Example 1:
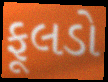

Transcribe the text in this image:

ફૂલડો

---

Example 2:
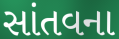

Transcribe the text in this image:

સાંતવના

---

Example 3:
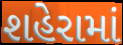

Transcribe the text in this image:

શહેરામાં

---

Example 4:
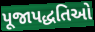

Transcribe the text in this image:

પૂજાપદ્ધતિઓ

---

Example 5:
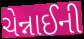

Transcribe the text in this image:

ચેન્નાઈની